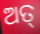
ଅତ୍